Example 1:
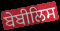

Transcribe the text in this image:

ਬੇਬੀਲਿਸ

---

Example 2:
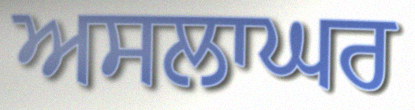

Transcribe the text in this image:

ਅਸਲਾਘਰ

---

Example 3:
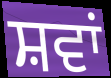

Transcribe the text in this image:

ਸ਼ਵਾਂ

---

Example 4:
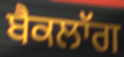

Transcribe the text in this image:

ਬੈਕਲਾੱਗ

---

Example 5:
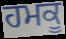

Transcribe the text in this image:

ਹਮਕੂ